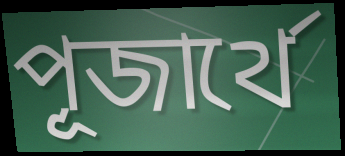
পূজার্থে